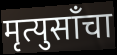
मृत्युसाँचा